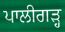
ਪਾਲੀਗੜ੍ਹ